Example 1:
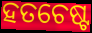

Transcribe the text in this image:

ହତଚେଷ୍ଟ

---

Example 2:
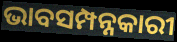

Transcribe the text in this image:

ଭାବସମ୍ପନ୍ନକାରୀ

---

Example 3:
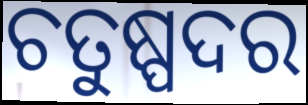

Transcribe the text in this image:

ଚତୁଷ୍ପଦର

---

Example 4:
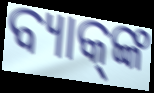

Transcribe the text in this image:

ବ୍ୟାକ୍‍ଙ୍କ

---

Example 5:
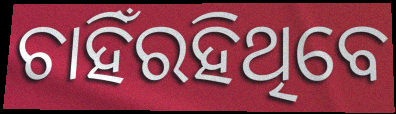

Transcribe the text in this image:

ଚାହିଁରହିଥିବେ